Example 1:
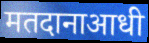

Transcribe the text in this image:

मतदानाआधी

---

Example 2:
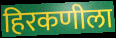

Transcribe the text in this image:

हिरकणीला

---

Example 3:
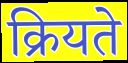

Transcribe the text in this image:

क्रियते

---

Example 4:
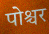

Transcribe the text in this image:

पोश्चर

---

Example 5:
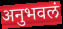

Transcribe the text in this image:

अनुभवलं